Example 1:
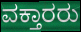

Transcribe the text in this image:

ವಕ್ತಾರರು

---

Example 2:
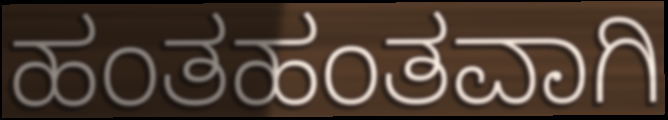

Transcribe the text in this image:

ಹಂತಹಂತವಾಗಿ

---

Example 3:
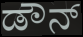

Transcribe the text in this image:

ಡೌನ್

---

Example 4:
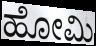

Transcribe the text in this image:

ಹೋಮಿ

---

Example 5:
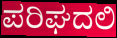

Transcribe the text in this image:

ಪರಿಘದಲಿ